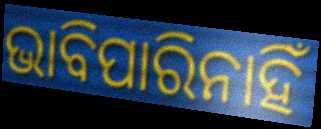
ଭାବିପାରିନାହିଁ